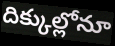
దిక్కుల్లోనూ